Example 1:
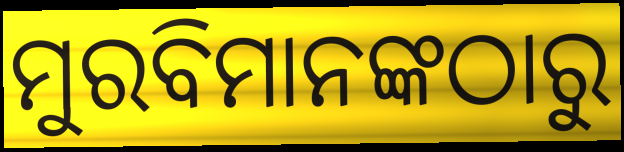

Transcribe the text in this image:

ମୁରବିମାନଙ୍କଠାରୁ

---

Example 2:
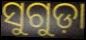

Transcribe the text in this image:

ସୁଗୁଡ଼ା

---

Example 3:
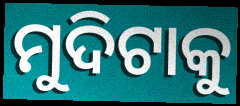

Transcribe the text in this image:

ମୁଦିଟାକୁ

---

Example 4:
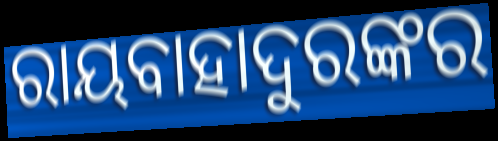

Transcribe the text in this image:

ରାୟବାହାଦୁରଙ୍କର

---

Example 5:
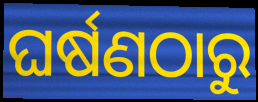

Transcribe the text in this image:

ଘର୍ଷଣଠାରୁ